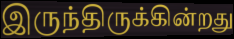
இருந்திருக்கின்றது